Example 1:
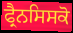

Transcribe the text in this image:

ਫ੍ਰੈਨਸਿਸਕੋ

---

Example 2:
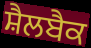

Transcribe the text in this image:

ਸ਼ੈਲਬੈਕ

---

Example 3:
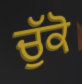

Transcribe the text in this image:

ਚੁੱਕੋ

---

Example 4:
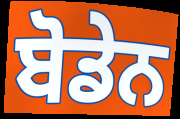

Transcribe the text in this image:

ਬੋਡੇਨ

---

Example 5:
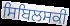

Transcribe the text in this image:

ਸਿਬਿਲਸਕੀ